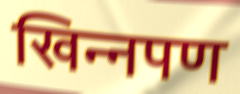
खिन्नपण